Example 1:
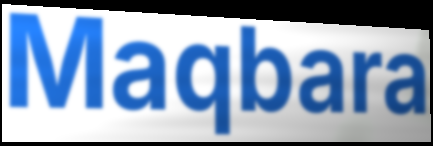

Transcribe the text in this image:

Maqbara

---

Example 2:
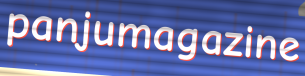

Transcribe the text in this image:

panjumagazine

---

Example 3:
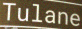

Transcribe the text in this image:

Tulane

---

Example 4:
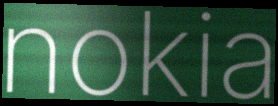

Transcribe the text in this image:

nokia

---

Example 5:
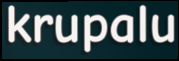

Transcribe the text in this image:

krupalu